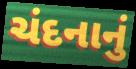
ચંદનાનું